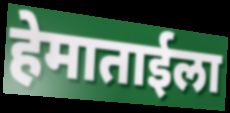
हेमाताईला